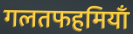
गलतफहमियाँ